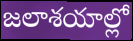
జలాశయాల్లో